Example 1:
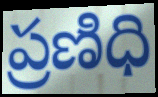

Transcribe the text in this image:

ప్రణిధి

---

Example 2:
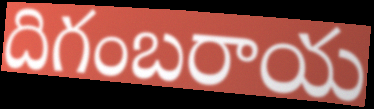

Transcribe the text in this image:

దిగంబరాయ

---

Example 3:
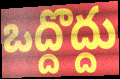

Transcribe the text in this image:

ఒద్దొద్దు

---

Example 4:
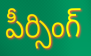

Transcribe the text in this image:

పీర్సింగ్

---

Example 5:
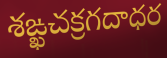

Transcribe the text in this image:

శఙ్ఖచక్రగదాధర